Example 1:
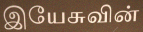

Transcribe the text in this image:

இயேசுவின்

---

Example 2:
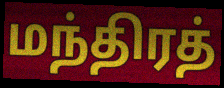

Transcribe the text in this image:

மந்திரத்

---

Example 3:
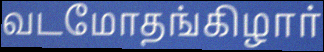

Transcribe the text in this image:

வடமோதங்கிழார்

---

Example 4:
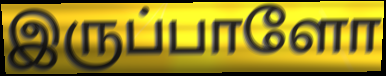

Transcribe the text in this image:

இருப்பாளோ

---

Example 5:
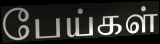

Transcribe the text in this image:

பேய்கள்